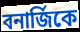
বনার্জিকে